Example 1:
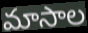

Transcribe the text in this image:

మాసాల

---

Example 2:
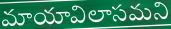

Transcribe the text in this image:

మాయావిలాసమని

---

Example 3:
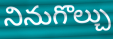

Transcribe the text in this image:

నినుగొల్చు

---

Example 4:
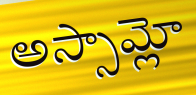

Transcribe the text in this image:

అస్సామ్లో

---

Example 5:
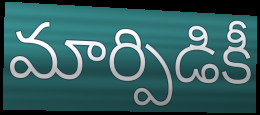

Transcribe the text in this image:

మార్పిడికీ